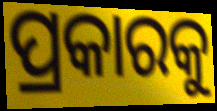
ପ୍ରକାରକୁ